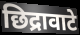
छिद्रावाटे